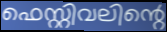
ഫെസ്റ്റിവലിന്റെ